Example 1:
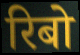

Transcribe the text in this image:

रिबो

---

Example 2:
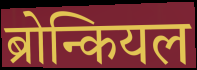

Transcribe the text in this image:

ब्रोन्कियल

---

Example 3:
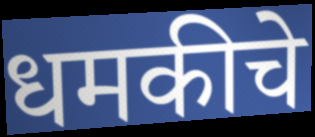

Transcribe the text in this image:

धमकीचे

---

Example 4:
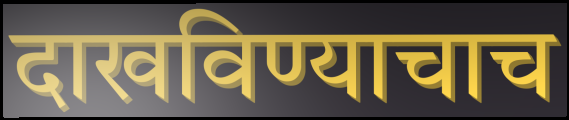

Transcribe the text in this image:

दाखविण्याचाच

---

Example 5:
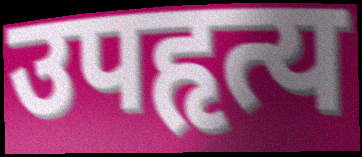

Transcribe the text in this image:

उपहृत्य